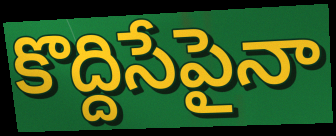
కొద్దిసేపైనా